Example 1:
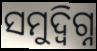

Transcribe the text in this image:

ସମୁଦ୍ବିଗ୍ନ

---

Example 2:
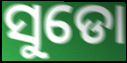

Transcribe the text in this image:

ସୁଡୋ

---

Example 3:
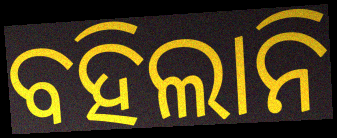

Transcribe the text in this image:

ବହିଲାନି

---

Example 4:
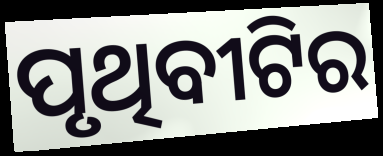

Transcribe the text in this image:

ପୃଥିବୀଟିର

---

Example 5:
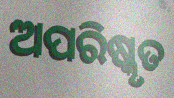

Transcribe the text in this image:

ଅପରିଷ୍କୃତ